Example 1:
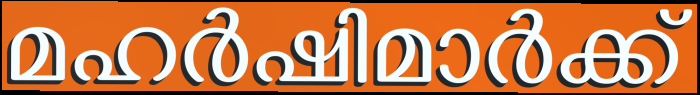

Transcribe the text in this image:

മഹർഷിമാർക്ക്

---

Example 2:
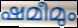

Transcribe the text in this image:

ഷമീമും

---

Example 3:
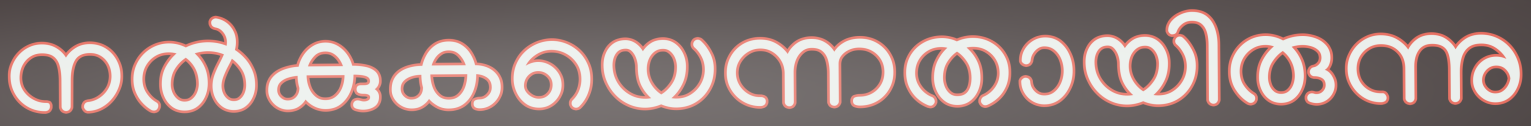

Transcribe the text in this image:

നൽകുകയെന്നതായിരുന്നു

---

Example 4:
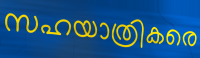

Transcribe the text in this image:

സഹയാത്രികരെ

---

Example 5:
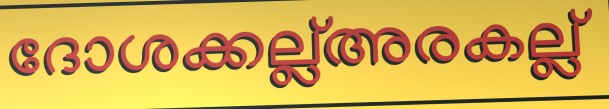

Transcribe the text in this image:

ദോശക്കല്ല്അരകല്ല്